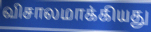
விசாலமாக்கியது